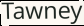
Tawney